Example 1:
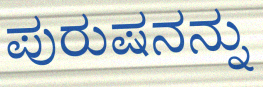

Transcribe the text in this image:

ಪುರುಷನನ್ನು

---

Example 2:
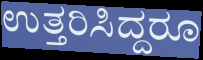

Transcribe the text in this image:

ಉತ್ತರಿಸಿದ್ದರೂ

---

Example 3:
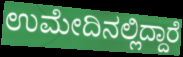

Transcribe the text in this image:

ಉಮೇದಿನಲ್ಲಿದ್ದಾರೆ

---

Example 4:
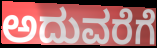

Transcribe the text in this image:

ಅದುವರೆಗೆ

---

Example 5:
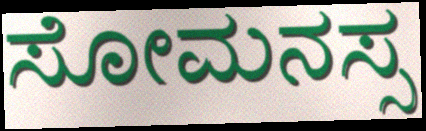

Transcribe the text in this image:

ಸೋಮನಸ್ಸ